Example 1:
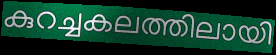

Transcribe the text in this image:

കുറച്ചകലത്തിലായി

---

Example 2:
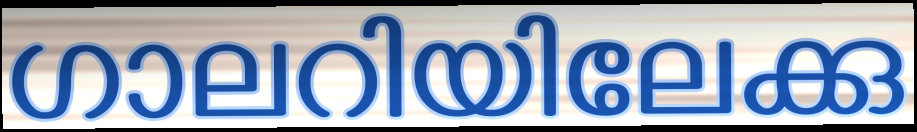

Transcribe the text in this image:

ഗാലറിയിലേക്കു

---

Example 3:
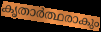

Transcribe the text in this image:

കൃതാർത്ഥരാകും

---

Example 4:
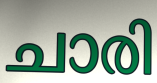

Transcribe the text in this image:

ചാരി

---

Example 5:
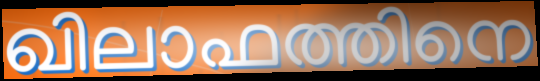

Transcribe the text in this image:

ഖിലാഫത്തിനെ